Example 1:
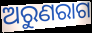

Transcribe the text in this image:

ଅରୁଣରାଗ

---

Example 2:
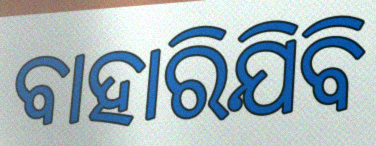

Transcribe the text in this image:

ବାହାରିଯିବି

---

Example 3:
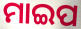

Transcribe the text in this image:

ମାଇପ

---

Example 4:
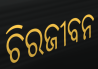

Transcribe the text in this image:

ଚିରଜୀବନ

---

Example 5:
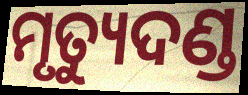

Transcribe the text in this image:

ମୃତ୍ୟୁଦଣ୍ଡ